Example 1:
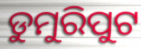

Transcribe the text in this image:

ଡୁମୁରିପୁଟ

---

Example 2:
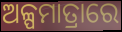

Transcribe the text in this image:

ଅଳ୍ପମାତ୍ରାରେ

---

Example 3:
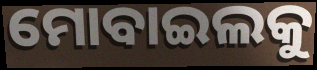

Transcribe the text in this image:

ମୋବାଇଲକୁ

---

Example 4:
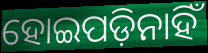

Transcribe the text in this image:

ହୋଇପଡ଼ିନାହିଁ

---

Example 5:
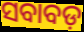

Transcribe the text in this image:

ସବାବଡ଼